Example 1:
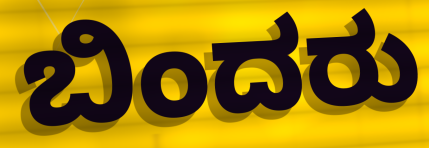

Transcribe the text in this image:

ಬಿಂದರು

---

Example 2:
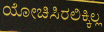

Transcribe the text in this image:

ಯೋಚಿಸಿರಲಿಕ್ಕಿಲ್ಲ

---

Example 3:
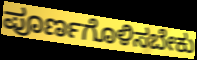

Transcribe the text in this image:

ಪೂರ್ಣಗೊಳಿಸಬೇಕು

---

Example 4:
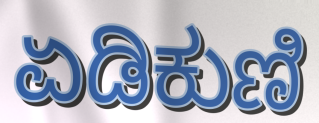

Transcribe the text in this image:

ಏಡಿಕುಣಿ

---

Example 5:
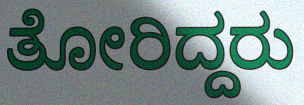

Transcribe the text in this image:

ತೋರಿದ್ದರು